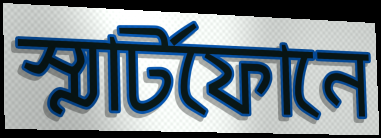
স্মার্টফোনে